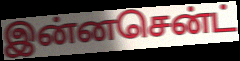
இன்னசென்ட்